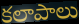
కలాపాలు